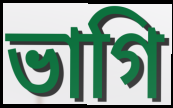
ভাগি